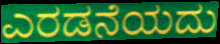
ಎರಡನೆಯದು